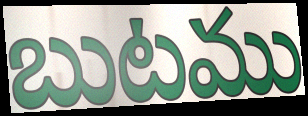
బుటము